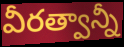
వీరత్వాన్నీ